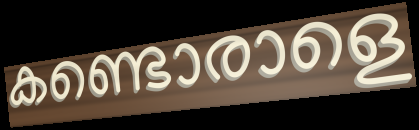
കണ്ടൊരാളെ